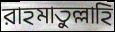
রাহমাতুল্লাহি